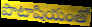
పొటాషియంతో